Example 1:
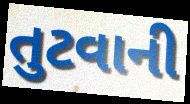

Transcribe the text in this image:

તુટવાની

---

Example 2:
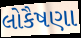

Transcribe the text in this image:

લોકૈષણા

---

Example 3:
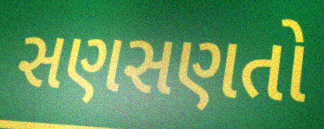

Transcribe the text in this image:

સણસણતો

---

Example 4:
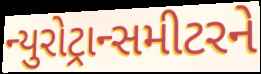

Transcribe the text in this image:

ન્યુરોટ્રાન્સમીટરને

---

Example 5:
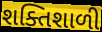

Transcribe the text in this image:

શક્તિશાળી